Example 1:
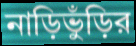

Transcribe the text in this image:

নাড়িভুঁড়ির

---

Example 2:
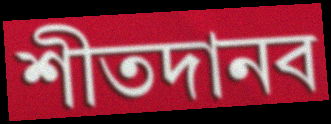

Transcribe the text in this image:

শীতদানব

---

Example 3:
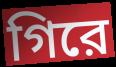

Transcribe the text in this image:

গিরে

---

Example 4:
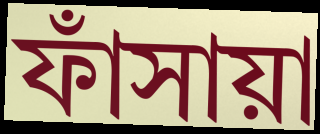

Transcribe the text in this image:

ফাঁসায়া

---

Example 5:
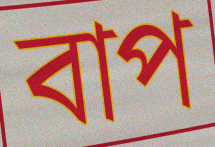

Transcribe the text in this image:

বাপ